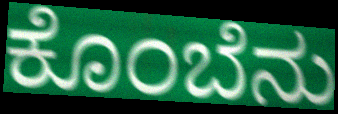
ಕೊಂಬೆನು